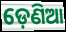
ଡ଼େଣିଆ